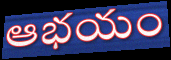
ఆభయం